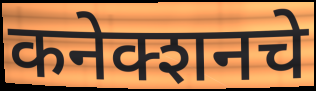
कनेक्शनचे